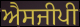
ਐਸਜੀਪੀ